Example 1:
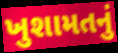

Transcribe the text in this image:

ખુશામતનું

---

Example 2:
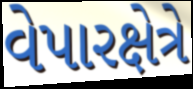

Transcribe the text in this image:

વેપારક્ષેત્રે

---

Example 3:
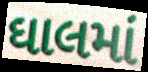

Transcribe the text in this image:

ઘાલમાં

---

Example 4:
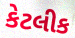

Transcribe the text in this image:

કેટલીક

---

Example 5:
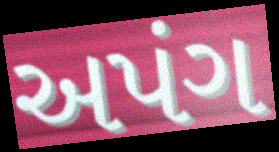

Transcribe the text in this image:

અપંગ